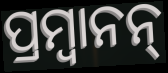
ପ୍ରମ୍ବାନନ୍